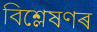
বিশ্লেষণৰ